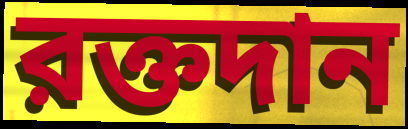
রক্তদান